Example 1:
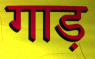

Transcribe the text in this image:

गाड़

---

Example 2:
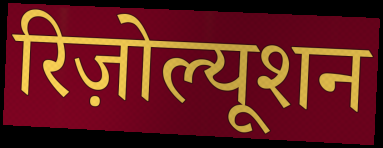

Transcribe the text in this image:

रिज़ोल्यूशन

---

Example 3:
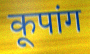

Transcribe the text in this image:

कूपांग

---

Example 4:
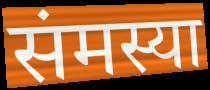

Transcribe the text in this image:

संमस्या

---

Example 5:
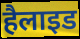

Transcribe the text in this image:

हैलाइड